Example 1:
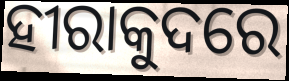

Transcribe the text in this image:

ହୀରାକୁଦରେ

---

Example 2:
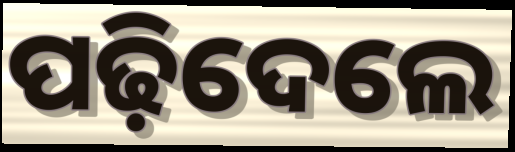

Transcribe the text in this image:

ପଢ଼ିଦେଲେ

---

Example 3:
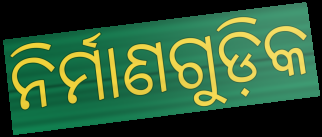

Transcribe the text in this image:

ନିର୍ମାଣଗୁଡ଼ିକ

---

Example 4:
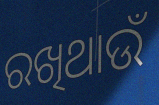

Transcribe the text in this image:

ରଖିଥାଉଁ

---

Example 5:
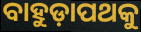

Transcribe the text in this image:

ବାହୁଡ଼ାପଥକୁ